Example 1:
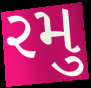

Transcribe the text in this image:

રમુ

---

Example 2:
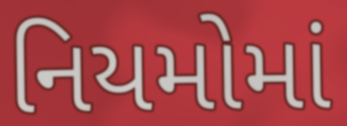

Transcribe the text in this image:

નિયમોમાં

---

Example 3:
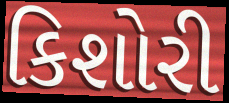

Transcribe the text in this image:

કિશોરી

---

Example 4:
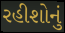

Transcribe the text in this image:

રહીશોનું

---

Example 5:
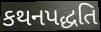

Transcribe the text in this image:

કથનપદ્ધતિ